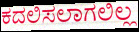
ಕದಲಿಸಲಾಗಲಿಲ್ಲ